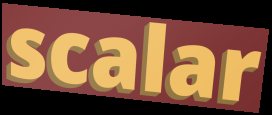
scalar